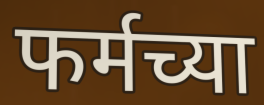
फर्मच्या